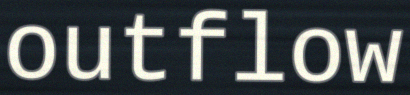
outflow